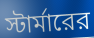
স্টার্মারের